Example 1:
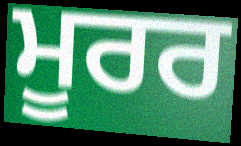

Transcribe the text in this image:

ਮੂਰਰ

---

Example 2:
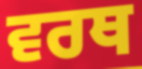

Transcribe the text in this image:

ਵਰਥ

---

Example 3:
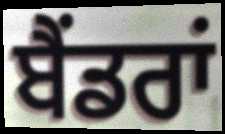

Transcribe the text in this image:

ਬੈਂਡਰਾਂ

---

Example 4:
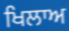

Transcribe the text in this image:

ਖਿਲਾਅ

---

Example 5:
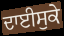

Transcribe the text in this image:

ਦਾਈਸੁਕੇ